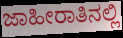
ಜಾಹೀರಾತಿನಲ್ಲಿ